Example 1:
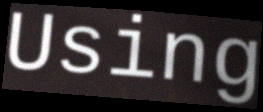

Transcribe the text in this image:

Using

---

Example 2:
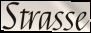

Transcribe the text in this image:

Strasse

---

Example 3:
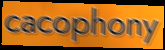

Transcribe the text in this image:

cacophony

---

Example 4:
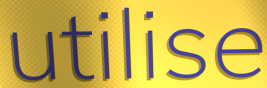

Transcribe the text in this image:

utilise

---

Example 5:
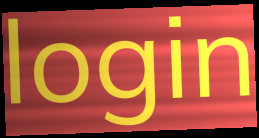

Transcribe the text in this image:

login